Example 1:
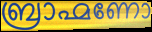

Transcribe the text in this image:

ബ്രാഹ്മണോ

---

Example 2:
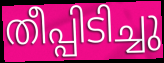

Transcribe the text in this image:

തീപ്പിടിച്ചു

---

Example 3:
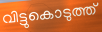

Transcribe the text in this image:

വിട്ടുകൊടുത്ത്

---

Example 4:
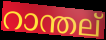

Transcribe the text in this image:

റാന്തല്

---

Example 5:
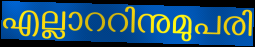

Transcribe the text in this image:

എല്ലാററിനുമുപരി